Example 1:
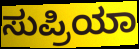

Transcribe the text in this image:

ಸುಪ್ರಿಯಾ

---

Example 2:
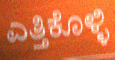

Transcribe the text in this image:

ಎತ್ತಿಕೊಳ್ಳಿ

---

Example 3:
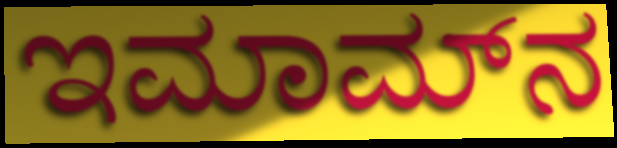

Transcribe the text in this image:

ಇಮಾಮ್‍ನ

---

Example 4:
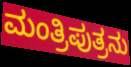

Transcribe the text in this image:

ಮಂತ್ರಿಪುತ್ರನು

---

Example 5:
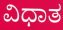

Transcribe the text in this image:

ವಿಧಾತ